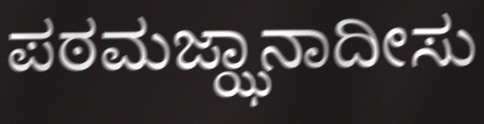
ಪಠಮಜ್ಝಾನಾದೀಸು